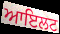
ਆਇਲਟ